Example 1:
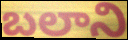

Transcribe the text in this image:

బలాని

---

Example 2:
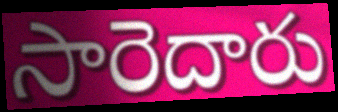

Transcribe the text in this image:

సారెదారు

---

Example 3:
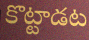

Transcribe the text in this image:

కొట్టాడట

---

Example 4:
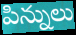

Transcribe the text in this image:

పిన్నులు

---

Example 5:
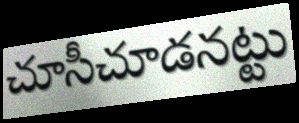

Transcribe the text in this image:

చూసీచూడనట్టు